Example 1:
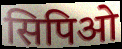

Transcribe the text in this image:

सिपिओ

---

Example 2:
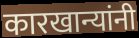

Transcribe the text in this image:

कारखान्यांनी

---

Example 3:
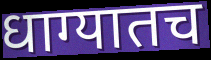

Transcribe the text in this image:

धाग्यातच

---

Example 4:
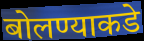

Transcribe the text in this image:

बोलण्याकडे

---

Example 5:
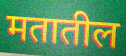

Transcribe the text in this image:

मतातील